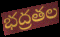
భద్రతల